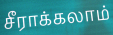
சீராக்கலாம்